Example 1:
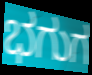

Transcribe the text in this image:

ಭಗುಗ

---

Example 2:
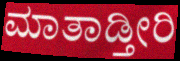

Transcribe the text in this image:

ಮಾತಾಡ್ತೀರಿ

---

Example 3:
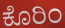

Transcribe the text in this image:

ಕೊರಿಂ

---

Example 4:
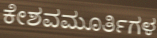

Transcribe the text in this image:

ಕೇಶವಮೂರ್ತಿಗಳ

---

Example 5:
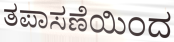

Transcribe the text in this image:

ತಪಾಸಣೆಯಿಂದ